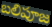
బలిపూజ